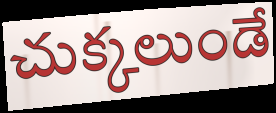
చుక్కలుండే